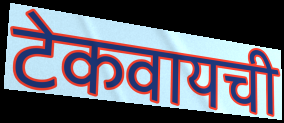
टेकवायची